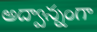
అద్వాన్నంగా